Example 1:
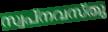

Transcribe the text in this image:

സ്വപ്നവസ്തു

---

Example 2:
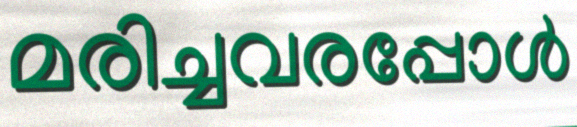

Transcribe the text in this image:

മരിച്ചവരപ്പോൾ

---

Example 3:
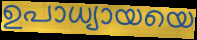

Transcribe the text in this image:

ഉപാധ്യായയെ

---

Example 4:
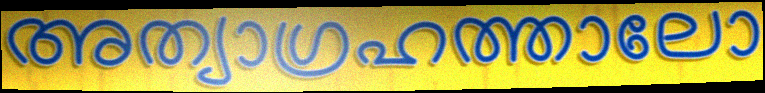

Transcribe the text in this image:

അത്യാഗ്രഹത്താലോ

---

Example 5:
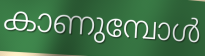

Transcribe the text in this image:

കാണുമ്പോൾ